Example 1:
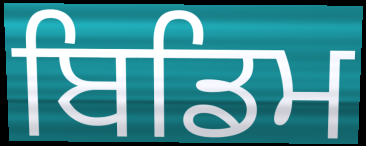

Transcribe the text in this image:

ਬਿਡਿਮ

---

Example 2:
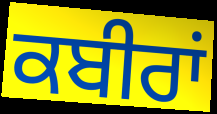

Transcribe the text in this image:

ਕਬੀਰਾਂ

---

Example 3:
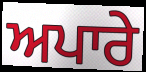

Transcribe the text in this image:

ਅਪਾਰੇ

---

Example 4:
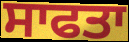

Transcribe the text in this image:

ਸਾਫਤਾ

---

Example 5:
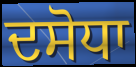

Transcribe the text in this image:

ਦਸੋਧਾ